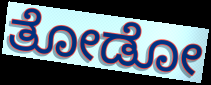
ತೋಡೋ